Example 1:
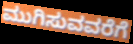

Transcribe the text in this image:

ಮುಗಿಸುವವರೆಗೆ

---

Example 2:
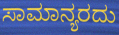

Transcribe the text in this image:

ಸಾಮಾನ್ಯರದು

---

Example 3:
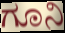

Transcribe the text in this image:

ಗೂನಿ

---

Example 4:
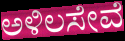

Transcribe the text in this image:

ಅಳಿಲಸೇವೆ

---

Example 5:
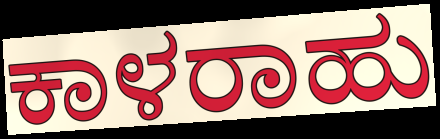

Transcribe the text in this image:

ಕಾಳರಾಹು